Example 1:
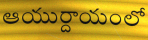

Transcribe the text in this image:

ఆయుర్దాయంలో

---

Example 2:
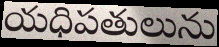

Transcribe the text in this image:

యధిపతులును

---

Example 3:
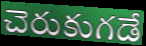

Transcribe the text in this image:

చెరుకుగడే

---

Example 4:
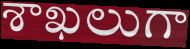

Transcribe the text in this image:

శాఖలుగా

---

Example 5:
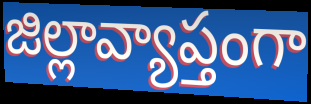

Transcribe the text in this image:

జిల్లావ్యాప్తంగా